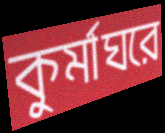
কুর্মাঘরে